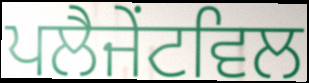
ਪਲੈਜੇਂਟਵਿਲ